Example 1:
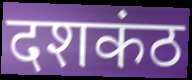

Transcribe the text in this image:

दशकंठ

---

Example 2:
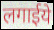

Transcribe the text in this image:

लगाईये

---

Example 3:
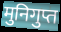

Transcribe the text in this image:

मुनिगुप्त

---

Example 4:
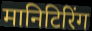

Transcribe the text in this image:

मानिटिरिंग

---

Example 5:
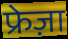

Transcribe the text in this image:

फ्रेज़ा